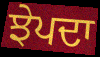
ਝੇਪਦਾ